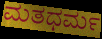
ಮತಧರ್ಮ